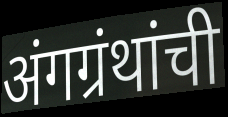
अंगग्रंथांची